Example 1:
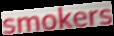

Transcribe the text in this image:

smokers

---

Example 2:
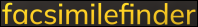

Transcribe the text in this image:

facsimilefinder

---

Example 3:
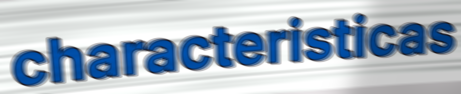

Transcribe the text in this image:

characteristicas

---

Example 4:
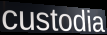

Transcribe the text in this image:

custodia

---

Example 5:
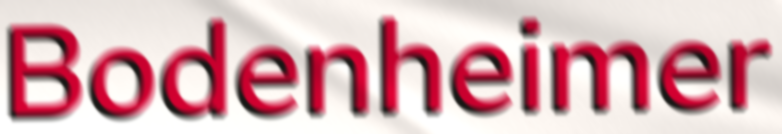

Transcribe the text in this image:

Bodenheimer